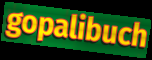
gopalibuch